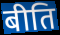
बीति